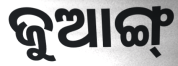
ଜୁଆଙ୍ଗ୍